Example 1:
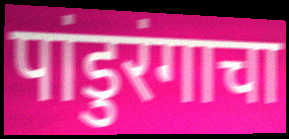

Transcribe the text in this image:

पांडुरंगाचा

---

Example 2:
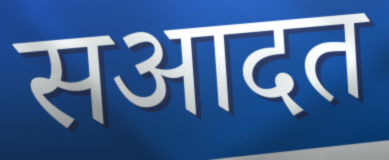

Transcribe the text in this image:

सआदत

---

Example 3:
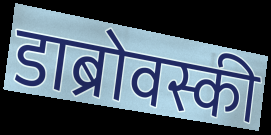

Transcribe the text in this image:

डाब्रोवस्की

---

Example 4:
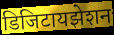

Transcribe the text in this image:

डिजिटायझेशन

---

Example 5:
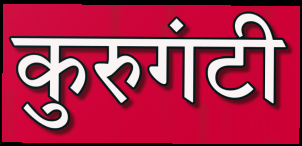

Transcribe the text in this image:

कुरुगंटी